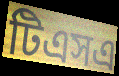
টিএসএ